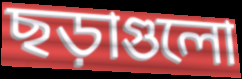
ছড়াগুলো